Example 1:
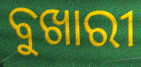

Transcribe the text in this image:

ବୁଖାରୀ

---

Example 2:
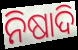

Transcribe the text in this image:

ନିଷାଦି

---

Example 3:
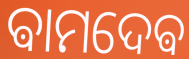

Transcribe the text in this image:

ଵାମଦେଵ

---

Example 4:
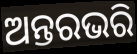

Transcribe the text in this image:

ଅନ୍ତରଭରି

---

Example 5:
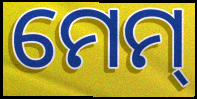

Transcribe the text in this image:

ମେମ୍